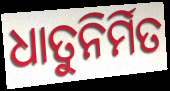
ଧାତୁନିର୍ମିତ